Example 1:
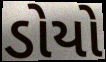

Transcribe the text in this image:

ડોયો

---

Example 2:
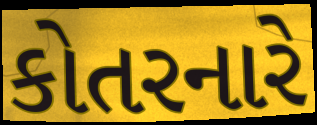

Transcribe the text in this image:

કોતરનારે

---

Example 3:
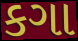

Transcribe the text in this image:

કગા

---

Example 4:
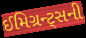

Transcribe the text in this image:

ઈમિગ્રન્ટ્સની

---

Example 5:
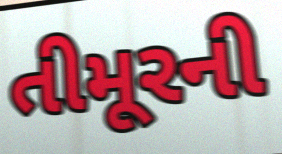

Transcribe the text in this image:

તીમૂરની